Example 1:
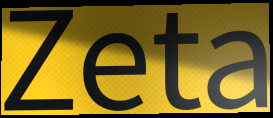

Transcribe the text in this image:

Zeta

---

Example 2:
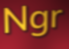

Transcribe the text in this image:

Ngr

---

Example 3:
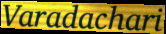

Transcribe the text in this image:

Varadachari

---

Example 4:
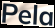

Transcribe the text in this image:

Pela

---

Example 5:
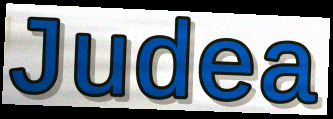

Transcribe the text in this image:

Judea